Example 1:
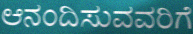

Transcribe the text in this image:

ಆನಂದಿಸುವವರಿಗೆ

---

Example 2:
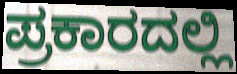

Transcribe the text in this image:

ಪ್ರಕಾರದಲ್ಲಿ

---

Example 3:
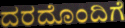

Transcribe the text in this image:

ದರದೊಂದಿಗೆ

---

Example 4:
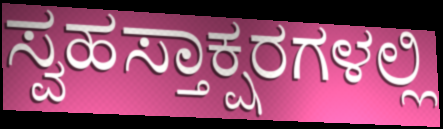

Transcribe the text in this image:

ಸ್ವಹಸ್ತಾಕ್ಷರಗಳಲ್ಲಿ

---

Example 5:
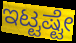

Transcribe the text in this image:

ಇಟ್ಟಷ್ಟೇ